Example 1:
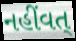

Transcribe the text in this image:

નહીંવત્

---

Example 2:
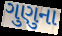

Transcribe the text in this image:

ગુણુના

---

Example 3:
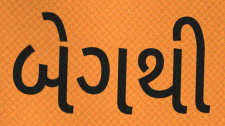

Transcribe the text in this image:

બેગથી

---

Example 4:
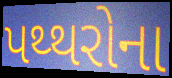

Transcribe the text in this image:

પથ્થરોના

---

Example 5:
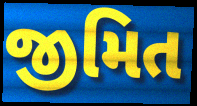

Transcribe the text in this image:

જીમિત